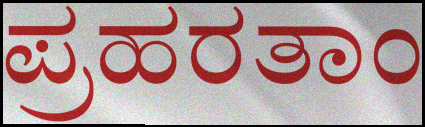
ಪ್ರಹರತಾಂ